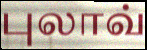
புலாவ்